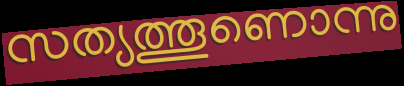
സത്യത്തൂണൊന്നു